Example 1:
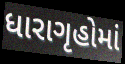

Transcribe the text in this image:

ધારાગૃહોમાં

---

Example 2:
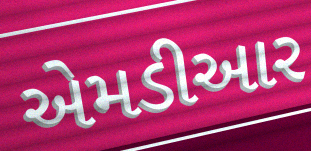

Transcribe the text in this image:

એમડીઆર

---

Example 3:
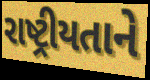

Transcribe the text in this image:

રાષ્ટ્રીયતાને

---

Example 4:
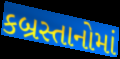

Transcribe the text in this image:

કબ્રસ્તાનોમાં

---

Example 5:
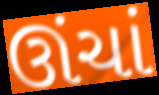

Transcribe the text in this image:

ઊંચાં